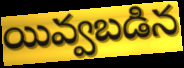
యివ్వబడిన